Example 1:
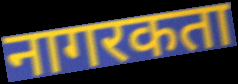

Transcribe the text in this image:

नागरकता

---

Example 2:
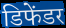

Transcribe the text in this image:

डिफेंडर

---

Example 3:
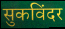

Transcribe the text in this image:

सुकविंदर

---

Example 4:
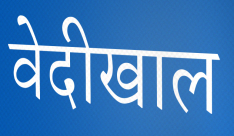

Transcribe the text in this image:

वेदीखाल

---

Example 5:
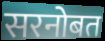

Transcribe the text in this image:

सरनोबत